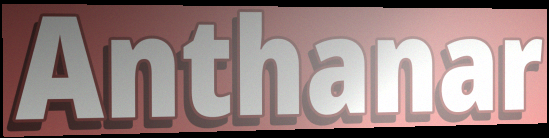
Anthanar